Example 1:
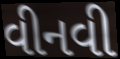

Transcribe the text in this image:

વીનવી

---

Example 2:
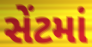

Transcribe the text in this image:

સેંટમાં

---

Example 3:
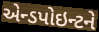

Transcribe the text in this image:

એન્ડપોઇન્ટને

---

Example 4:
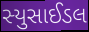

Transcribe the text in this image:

સ્યુસાઈડલ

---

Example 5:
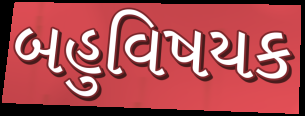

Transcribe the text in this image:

બહુવિષયક